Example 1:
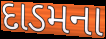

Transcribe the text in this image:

દાડમના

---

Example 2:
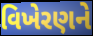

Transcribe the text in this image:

વિખેરણને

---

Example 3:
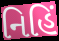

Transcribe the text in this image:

નિહિં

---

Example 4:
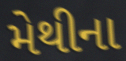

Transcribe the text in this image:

મેથીના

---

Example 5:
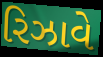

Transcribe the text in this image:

રિઝાવે